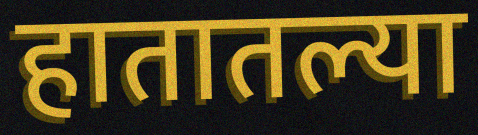
हातातल्या